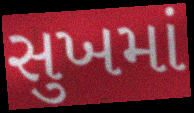
સુખમાં